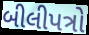
બીલીપત્રો